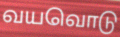
வயவொடு